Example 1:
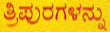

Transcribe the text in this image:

ತ್ರಿಪುರಗಳನ್ನು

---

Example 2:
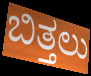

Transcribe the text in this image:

ಬಿತ್ತಲು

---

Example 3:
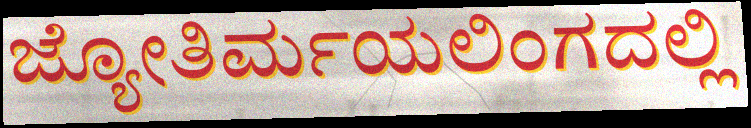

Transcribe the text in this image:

ಜ್ಯೋತಿರ್ಮಯಲಿಂಗದಲ್ಲಿ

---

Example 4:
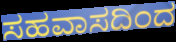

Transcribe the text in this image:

ಸಹವಾಸದಿಂದ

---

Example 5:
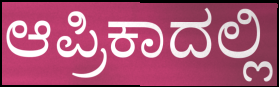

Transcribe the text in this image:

ಆಪ್ರಿಕಾದಲ್ಲಿ